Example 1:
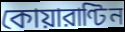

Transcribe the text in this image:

কোয়ারাণ্টিন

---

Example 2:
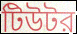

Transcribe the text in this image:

টিউটর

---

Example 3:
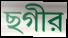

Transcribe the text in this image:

ছগীর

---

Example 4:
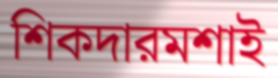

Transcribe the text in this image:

শিকদারমশাই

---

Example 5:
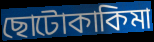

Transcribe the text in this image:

ছোটোকাকিমা